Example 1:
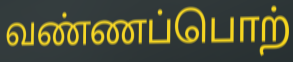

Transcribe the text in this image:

வண்ணப்பொற்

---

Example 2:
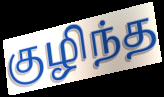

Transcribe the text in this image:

குழிந்த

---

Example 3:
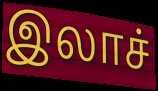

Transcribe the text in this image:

இலாச்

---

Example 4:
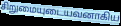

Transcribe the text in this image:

சிறுமையுடையவனாகிய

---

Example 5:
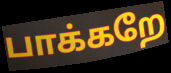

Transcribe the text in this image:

பாக்கறே